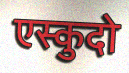
एस्कुदो